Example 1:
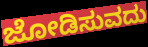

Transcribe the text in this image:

ಜೋಡಿಸುವದು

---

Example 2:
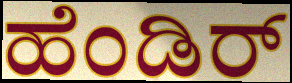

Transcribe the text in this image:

ಹೆಂಡಿರ್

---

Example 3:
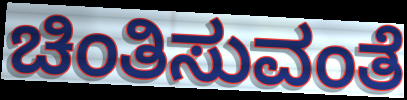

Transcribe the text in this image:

ಚಿಂತಿಸುವಂತೆ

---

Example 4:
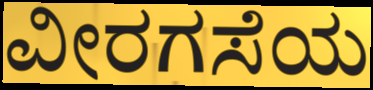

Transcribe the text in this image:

ವೀರಗಸೆಯ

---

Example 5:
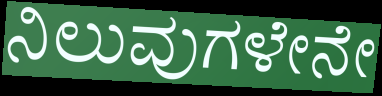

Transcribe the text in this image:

ನಿಲುವುಗಳೇನೇ